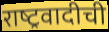
राष्ट्रवादीची